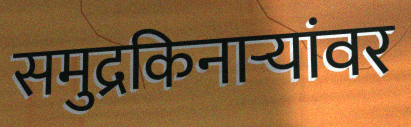
समुद्रकिनाऱ्यांवर